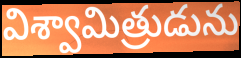
విశ్వామిత్రుడును